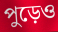
পুড়েও